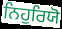
ਨਿਹੁਰਿਯੋ